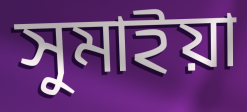
সুমাইয়া